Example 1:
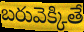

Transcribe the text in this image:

బరువెక్కితే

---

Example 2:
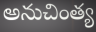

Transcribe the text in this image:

అనుచింత్య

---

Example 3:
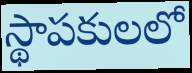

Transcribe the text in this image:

స్థాపకులలో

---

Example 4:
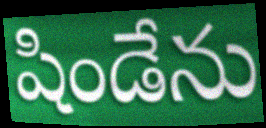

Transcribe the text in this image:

షిండేను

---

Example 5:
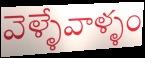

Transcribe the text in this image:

వెళ్ళేవాళ్ళం